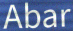
Abar